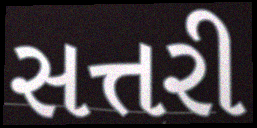
સત્તરી